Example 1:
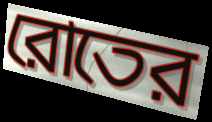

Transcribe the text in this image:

রোতের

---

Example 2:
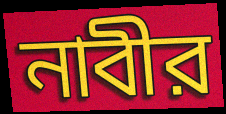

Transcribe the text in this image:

নাবীর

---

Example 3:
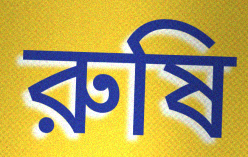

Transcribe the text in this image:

রুষি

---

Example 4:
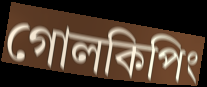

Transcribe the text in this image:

গোলকিপিং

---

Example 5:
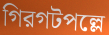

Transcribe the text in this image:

গিরগটপল্লে